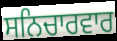
ਸਨਿਚਾਰਵਾਰ